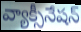
వ్యాక్సీనేషన్